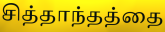
சித்தாந்தத்தை